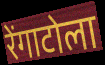
रेंगाटोला